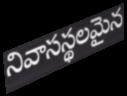
నివాసస్థలమైన